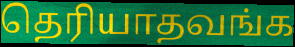
தெரியாதவங்க